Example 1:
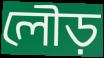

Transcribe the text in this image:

লৌড়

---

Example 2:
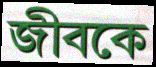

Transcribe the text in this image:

জীবকে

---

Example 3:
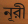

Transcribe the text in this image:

নূরী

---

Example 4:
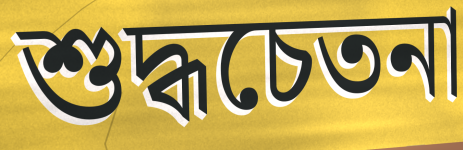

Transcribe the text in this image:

শুদ্ধচেতনা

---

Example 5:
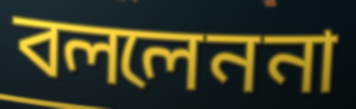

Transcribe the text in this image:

বললেননা